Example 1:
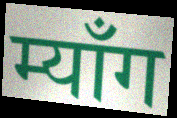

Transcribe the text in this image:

म्याँग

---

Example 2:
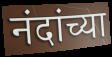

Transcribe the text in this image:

नंदांच्या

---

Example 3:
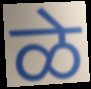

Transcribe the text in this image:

ळे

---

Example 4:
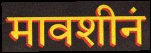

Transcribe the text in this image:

मावशीनं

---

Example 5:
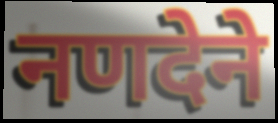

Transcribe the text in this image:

नणदेने